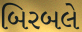
બિરબલે